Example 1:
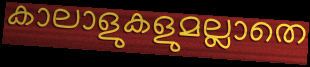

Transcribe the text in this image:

കാലാളുകളുമല്ലാതെ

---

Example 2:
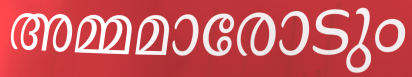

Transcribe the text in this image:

അമ്മമാരോടും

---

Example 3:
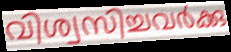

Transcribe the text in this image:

വിശ്വസിച്ചവർക്കു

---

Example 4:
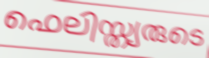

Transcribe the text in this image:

ഫെലിസ്ത്യരുടെ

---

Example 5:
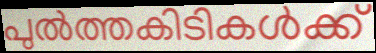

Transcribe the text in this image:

പുൽത്തകിടികൾക്ക്